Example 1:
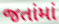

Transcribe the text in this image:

જતાંમાં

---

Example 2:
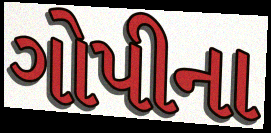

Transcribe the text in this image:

ગોપીના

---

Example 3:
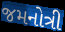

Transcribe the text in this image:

જમનોત્રી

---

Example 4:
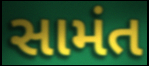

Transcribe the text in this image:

સામંત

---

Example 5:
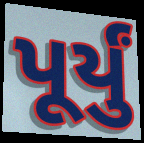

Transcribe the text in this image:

પૂર્યું